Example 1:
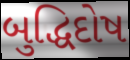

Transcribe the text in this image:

બુદ્ધિદોષ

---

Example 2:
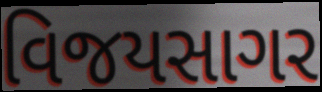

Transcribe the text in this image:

વિજયસાગર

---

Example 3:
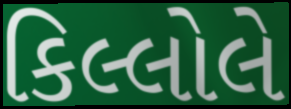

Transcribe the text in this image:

કિલ્લોલે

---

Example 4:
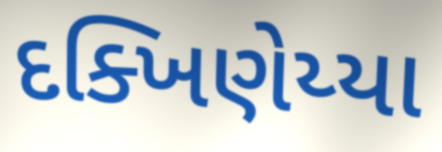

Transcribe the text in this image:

દક્ખિણેય્યા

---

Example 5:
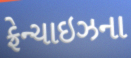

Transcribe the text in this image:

ફ્રેન્ચાઇઝના